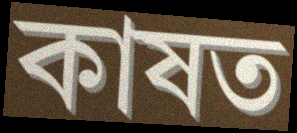
কাষত